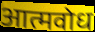
आत्मवोध